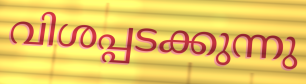
വിശപ്പടക്കുന്നു